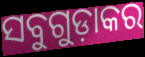
ସବୁଗୁଡ଼ାକର